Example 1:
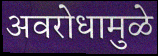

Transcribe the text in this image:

अवरोधामुळे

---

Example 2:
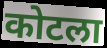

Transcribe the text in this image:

कोटला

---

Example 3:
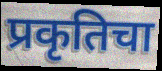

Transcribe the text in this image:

प्रकृतिचा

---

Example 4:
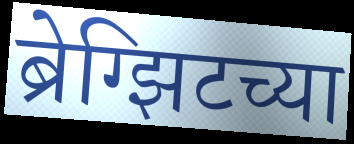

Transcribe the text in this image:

ब्रेग्झिटच्या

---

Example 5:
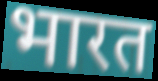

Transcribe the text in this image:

भारत